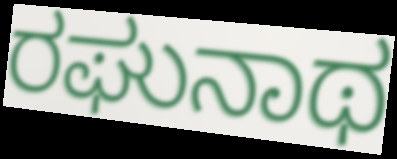
ರಘುನಾಥ